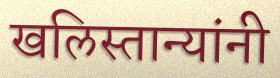
खलिस्तान्यांनी